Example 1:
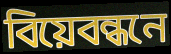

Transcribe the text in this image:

বিয়েবন্ধনে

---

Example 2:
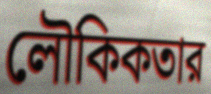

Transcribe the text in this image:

লৌকিকতার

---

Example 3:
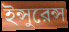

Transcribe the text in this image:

ইন্সুরেন্স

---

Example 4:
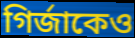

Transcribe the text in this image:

গির্জাকেও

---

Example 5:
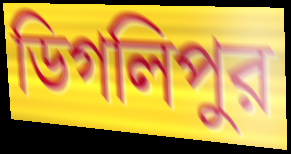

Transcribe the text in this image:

ডিগলিপুর